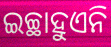
ଇଚ୍ଛାହୁଏନି